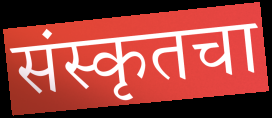
संस्कृतचा